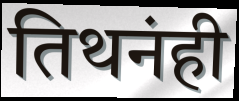
तिथनंही